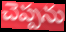
చెప్పను